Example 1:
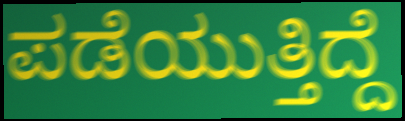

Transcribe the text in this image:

ಪಡೆಯುತ್ತಿದ್ದೆ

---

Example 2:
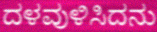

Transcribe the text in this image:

ದಳವುಳಿಸಿದನು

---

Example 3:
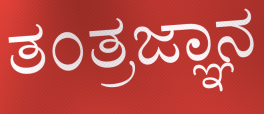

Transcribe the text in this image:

ತಂತ್ರಜ್ಞಾನ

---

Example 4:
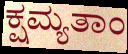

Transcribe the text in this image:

ಕ್ಷಮ್ಯತಾಂ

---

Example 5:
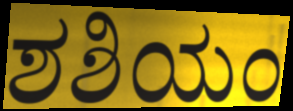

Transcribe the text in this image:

ಶಶಿಯಂ